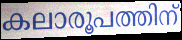
കലാരൂപത്തിന്